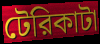
টেরিকাটা